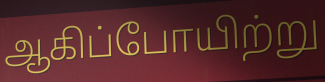
ஆகிப்போயிற்று